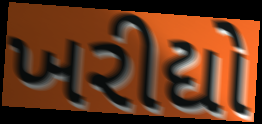
ખરીદ્યો